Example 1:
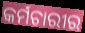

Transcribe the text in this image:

କର୍ମଚାରୀର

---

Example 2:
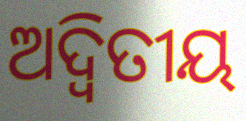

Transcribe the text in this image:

ଅଦ୍ଵିତୀୟ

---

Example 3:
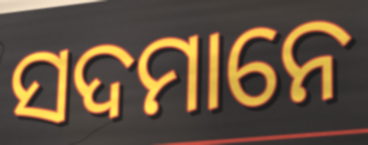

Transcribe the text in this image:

ସଦମାନେ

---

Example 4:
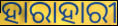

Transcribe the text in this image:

ହାରାହାରୀ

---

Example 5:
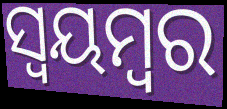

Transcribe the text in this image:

ସ୍ଵୟମ୍ବର